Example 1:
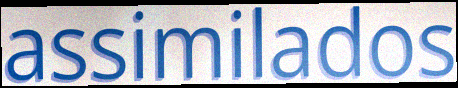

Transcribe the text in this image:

assimilados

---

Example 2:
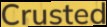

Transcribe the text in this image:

Crusted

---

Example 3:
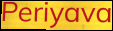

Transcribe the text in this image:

Periyava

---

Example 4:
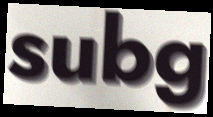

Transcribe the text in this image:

subg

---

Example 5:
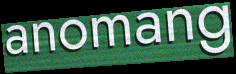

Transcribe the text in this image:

anomang